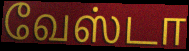
வேஸ்டா